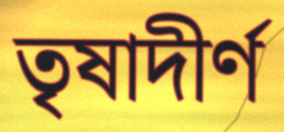
তৃষাদীর্ণ